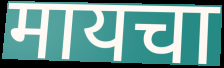
मायचा